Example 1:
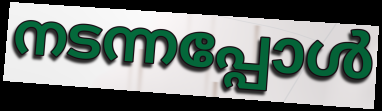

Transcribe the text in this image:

നടന്നപ്പോൾ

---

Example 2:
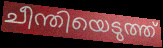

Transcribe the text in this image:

ചീന്തിയെടുത്ത്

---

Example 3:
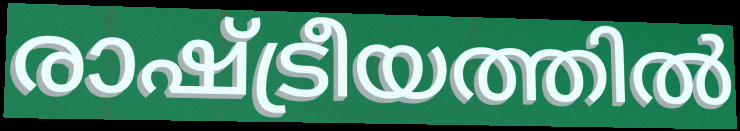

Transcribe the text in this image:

രാഷ്ട്രീയത്തിൽ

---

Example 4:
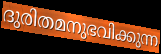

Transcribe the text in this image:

ദുരിതമനുഭവിക്കുന്ന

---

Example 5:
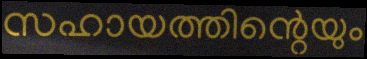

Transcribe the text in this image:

സഹായത്തിന്റെയും